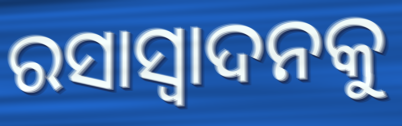
ରସାସ୍ୱାଦନକୁ